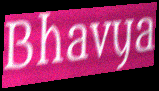
Bhavya